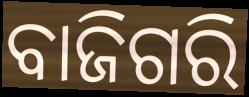
ବାଜିଗରି